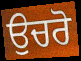
ਉਚਰੋ